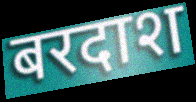
बरदाश